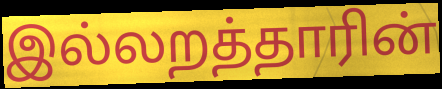
இல்லறத்தாரின்